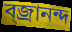
ব্জ্রানন্দ